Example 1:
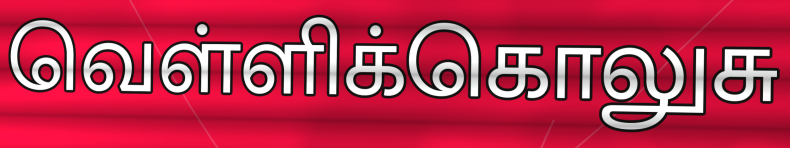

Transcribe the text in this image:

வெள்ளிக்கொலுசு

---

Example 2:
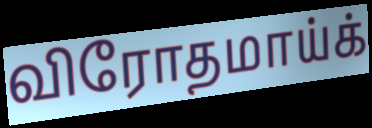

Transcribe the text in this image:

விரோதமாய்க்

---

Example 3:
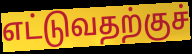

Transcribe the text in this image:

எட்டுவதற்குச்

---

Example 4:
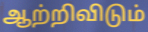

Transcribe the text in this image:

ஆற்றிவிடும்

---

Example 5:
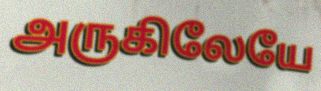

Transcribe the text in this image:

அருகிலேயே